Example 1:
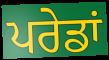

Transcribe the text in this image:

ਪਰੇਡਾਂ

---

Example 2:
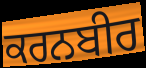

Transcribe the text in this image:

ਕਰਨਬੀਰ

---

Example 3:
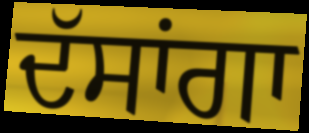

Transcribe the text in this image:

ਦੱਸਾਂਗਾ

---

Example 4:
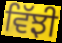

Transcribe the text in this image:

ਵਿੱਝੀ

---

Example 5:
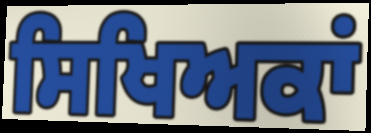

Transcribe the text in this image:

ਸਿਖਿਅਕਾਂ